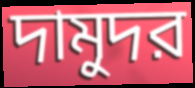
দামুদর